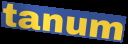
tanum